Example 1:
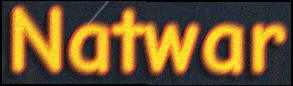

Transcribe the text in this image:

Natwar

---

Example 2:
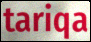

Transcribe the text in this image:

tariqa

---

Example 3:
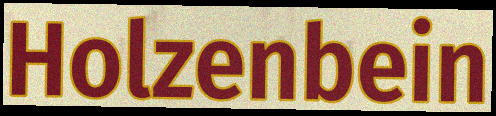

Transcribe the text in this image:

Holzenbein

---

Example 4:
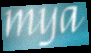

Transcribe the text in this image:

mya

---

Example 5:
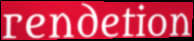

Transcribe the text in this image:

rendetion